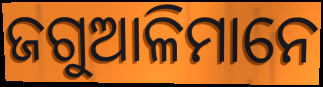
ଜଗୁଆଳିମାନେ